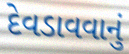
દેવડાવવાનું